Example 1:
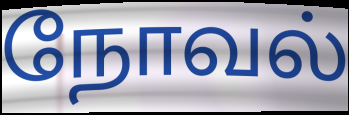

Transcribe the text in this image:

நோவல்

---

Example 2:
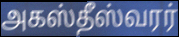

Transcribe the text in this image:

அகஸ்தீஸ்வரர்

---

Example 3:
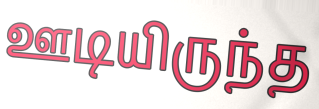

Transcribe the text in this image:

ஊடியிருந்த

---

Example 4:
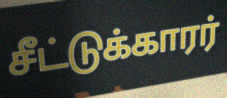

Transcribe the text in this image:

சீட்டுக்காரர்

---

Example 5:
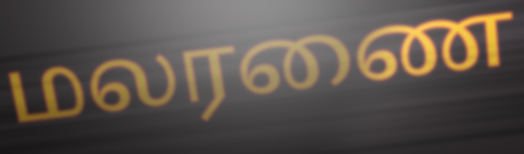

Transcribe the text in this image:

மலரணை